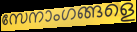
സേനാംഗങ്ങളെ